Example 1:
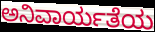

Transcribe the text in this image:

ಅನಿವಾರ್ಯತೆಯ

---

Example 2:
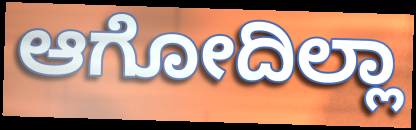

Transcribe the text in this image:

ಆಗೋದಿಲ್ಲಾ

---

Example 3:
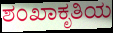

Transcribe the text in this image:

ಶಂಖಾಕೃತಿಯ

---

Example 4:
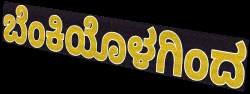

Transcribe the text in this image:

ಬೆಂಕಿಯೊಳಗಿಂದ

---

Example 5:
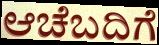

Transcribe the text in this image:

ಆಚೆಬದಿಗೆ